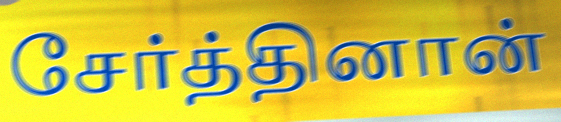
சேர்த்தினான்